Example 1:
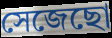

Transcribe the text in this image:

সেজেছো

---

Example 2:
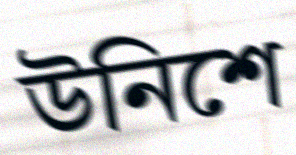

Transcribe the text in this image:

উনিশে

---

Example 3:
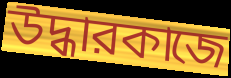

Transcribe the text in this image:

উদ্ধারকাজে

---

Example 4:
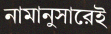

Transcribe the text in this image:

নামানুসারেই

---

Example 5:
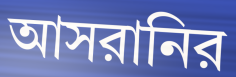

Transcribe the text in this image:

আসরানির